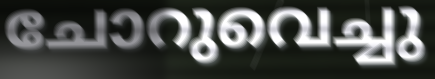
ചോറുവെച്ചു